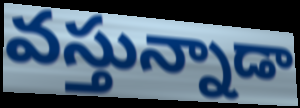
వస్తున్నాడా